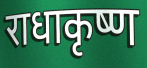
राधाकृष्ण